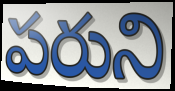
పరుని